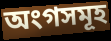
অংগসমূহ